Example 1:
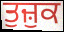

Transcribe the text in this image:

ਤੁਜ਼ੁਕ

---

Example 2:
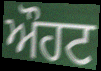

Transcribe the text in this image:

ਔਹਟ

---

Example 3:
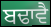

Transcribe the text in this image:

ਬਢਾਵੈ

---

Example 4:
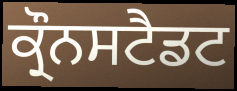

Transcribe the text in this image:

ਕ੍ਰੌਨਸਟੈਡਟ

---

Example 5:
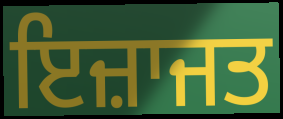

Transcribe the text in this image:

ਇਜ਼ਾਜਤ